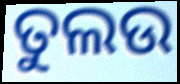
ତୁଲଉ